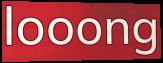
looong